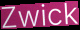
Zwick